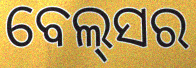
ବେଲ୍‌ସର